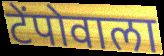
टेंपोवाला